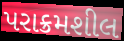
પરાક્રમશીલ